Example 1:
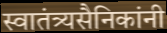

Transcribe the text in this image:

स्वातंत्र्यसैनिकांनी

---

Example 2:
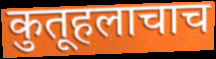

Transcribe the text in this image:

कुतूहलाचाच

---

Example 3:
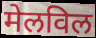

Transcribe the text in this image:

मेलविल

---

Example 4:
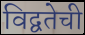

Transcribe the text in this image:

विद्वतेची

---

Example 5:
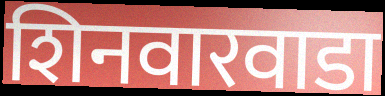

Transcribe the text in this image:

शिनवारवाडा